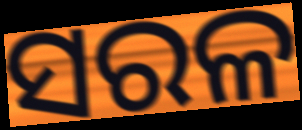
ସରଳ